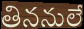
తిననులే